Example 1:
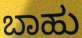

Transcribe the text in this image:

ಬಾಹು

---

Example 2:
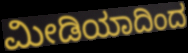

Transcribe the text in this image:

ಮೀಡಿಯಾದಿಂದ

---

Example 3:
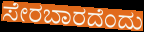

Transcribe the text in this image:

ಸೇರಬಾರದೆಂದು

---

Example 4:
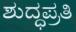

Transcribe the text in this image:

ಶುದ್ಧಪ್ರತಿ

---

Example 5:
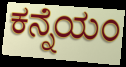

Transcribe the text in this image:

ಕನ್ನೆಯಂ